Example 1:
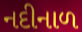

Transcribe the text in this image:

નદીનાળ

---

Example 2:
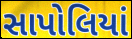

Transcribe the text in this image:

સાપોલિયાં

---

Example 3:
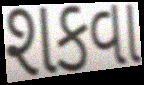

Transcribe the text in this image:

શકવા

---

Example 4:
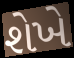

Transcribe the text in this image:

શેખે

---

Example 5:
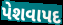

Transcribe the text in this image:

પેશવાપદ